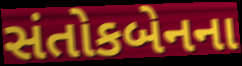
સંતોકબેનના